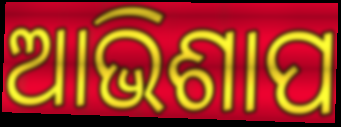
ଆଭିଶାପ